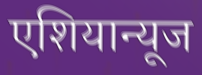
एशियान्यूज